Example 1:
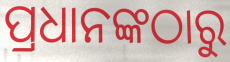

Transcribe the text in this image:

ପ୍ରଧାନଙ୍କଠାରୁ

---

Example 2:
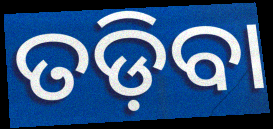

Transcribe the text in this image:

ତଡ଼ିବା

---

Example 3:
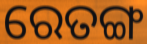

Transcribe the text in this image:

ରେତଙ୍ଗ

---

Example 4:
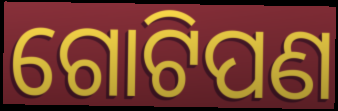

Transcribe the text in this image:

ଗୋଟିପଣ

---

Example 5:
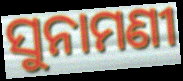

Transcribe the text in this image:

ସୁନାମଣୀ